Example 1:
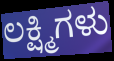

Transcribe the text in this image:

ಲಕ್ಷ್ಮಿಗಳು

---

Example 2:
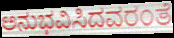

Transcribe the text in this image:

ಅನುಭವಿಸಿದವರಂತೆ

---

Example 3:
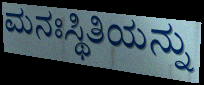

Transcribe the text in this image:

ಮನಃಸ್ಥಿತಿಯನ್ನು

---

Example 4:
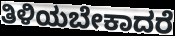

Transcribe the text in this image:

ತಿಳಿಯಬೇಕಾದರೆ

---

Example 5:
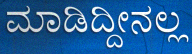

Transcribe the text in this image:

ಮಾಡಿದ್ದೀನಲ್ಲ